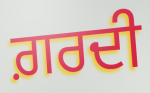
ਗ਼ਰਦੀ